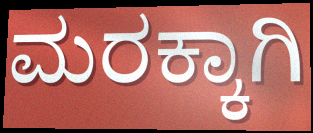
ಮರಕ್ಕಾಗಿ